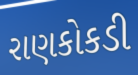
રાણકોકડી